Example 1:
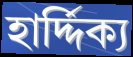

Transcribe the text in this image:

হার্দ্দিক্য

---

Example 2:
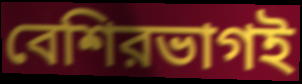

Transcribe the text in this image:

বেশিরভাগই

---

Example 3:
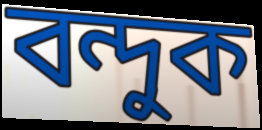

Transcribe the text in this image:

বন্দুক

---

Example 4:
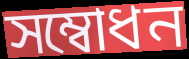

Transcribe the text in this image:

সম্বোধন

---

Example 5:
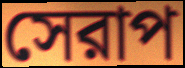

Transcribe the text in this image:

সেরাপ